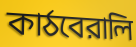
কাঠবেরালি